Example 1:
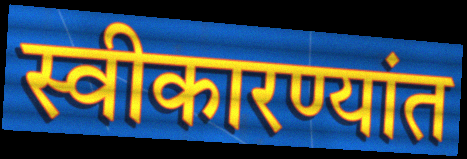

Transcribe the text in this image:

स्वीकारण्यांत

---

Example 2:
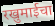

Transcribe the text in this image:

रखुमाईचा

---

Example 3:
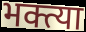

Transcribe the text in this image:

भक्त्या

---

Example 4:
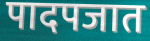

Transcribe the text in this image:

पादपजात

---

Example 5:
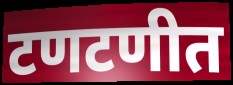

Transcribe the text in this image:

टणटणीत